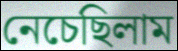
নেচেছিলাম